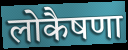
लोकैषणा